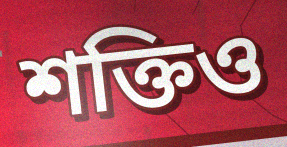
শক্তিও